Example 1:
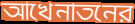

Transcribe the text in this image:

আখেনাতনের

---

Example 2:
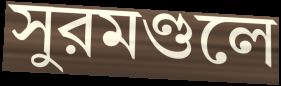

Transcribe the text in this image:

সুরমণ্ডলে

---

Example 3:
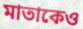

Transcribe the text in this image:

মাতাকেও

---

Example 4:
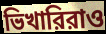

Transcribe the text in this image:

ভিখারিরাও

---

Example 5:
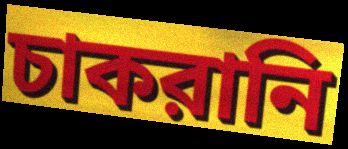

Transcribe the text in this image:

চাকরানি